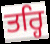
ਤਰ੍ਹਿ